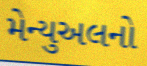
મેન્યુઅલનો